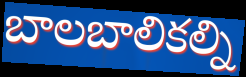
బాలబాలికల్ని